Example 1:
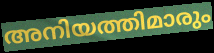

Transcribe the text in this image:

അനിയത്തിമാരും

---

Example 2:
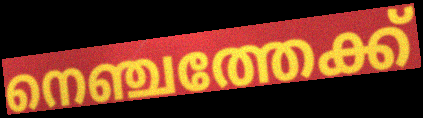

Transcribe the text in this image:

നെഞ്ചത്തേക്ക്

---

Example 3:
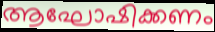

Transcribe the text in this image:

ആഘോഷിക്കണം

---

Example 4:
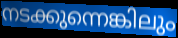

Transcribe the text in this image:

നടക്കുന്നെങ്കിലും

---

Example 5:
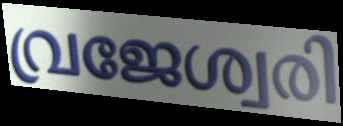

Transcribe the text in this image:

വ്രജേശ്വരി